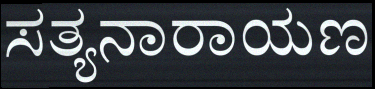
ಸತ್ಯನಾರಾಯಣ